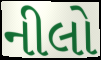
નીલો